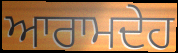
ਆਰਾਮਦੇਹ